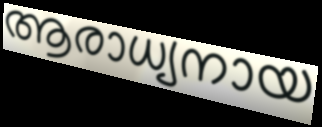
ആരാധ്യനായ